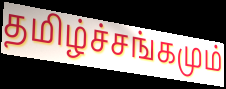
தமிழ்ச்சங்கமும்